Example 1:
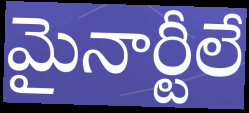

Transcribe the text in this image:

మైనార్టీలే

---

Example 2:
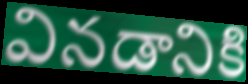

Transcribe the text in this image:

వినడానికి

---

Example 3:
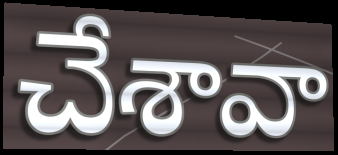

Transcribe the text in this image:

చేశావా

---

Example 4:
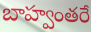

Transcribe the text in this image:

బాహ్వంతరే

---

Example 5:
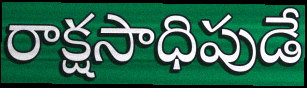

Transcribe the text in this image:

రాక్షసాధిపుడే